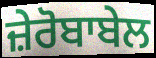
ਜ਼ੇਰੋਬਾਬੇਲ